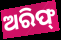
ଅରିଫ୍